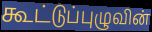
கூட்டுப்புழுவின்